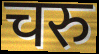
चरु